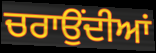
ਚਰਾਉਂਦੀਆਂ